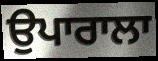
ਉਪਾਰਾਲਾ